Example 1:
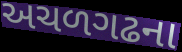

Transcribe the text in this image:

અચળગઢના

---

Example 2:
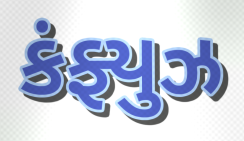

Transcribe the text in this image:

કંફ્યુઝ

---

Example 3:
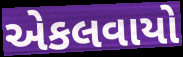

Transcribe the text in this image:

એકલવાયો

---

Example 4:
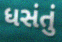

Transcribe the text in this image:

ધસંતું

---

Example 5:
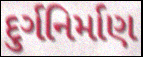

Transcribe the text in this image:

દુર્ગનિર્માણ